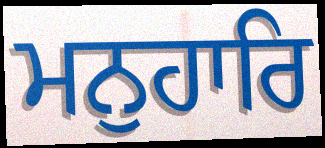
ਮਨੁਹਾਰਿ